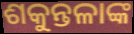
ଶକୁନ୍ତଳାଙ୍କ